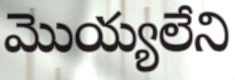
మొయ్యలేని